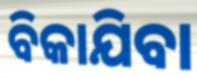
ବିକାଯିବା